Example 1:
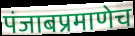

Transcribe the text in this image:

पंजाबप्रमाणेच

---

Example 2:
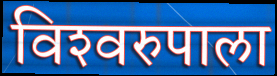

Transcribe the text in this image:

विश्वरुपाला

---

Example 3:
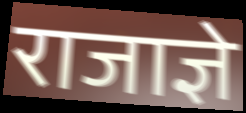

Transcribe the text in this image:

राजाज्ञे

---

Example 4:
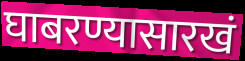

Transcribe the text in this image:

घाबरण्यासारखं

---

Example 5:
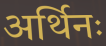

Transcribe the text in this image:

अर्थिनः